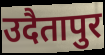
उदैतापुर